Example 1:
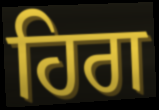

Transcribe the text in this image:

ਹਿਗ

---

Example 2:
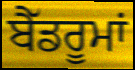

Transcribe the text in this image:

ਬੈੱਡਰੂਮਾਂ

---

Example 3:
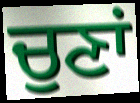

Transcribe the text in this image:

ਚੁਣਾਂ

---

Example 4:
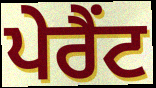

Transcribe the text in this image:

ਪੇਰੈਂਟ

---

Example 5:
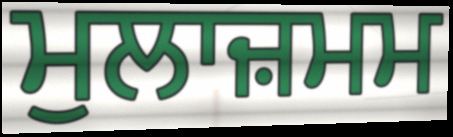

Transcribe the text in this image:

ਮੁਲਾਜ਼ਮਮ